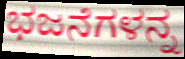
ಭಜನೆಗಳನ್ನ